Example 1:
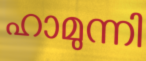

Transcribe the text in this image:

ഹാമുന്നി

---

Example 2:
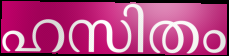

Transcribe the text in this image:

ഹസിതം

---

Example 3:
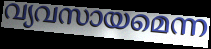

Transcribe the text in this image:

വ്യവസായമെന്ന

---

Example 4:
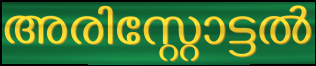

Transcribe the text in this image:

അരിസ്റ്റോട്ടൽ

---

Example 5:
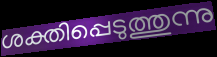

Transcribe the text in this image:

ശക്തിപ്പെടുത്തുന്നു